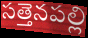
సత్తెనపల్లి